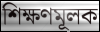
শিক্ষণমূলক